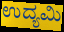
ಉದ್ಯಮಿ